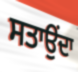
ਸਤਾਉਂਦਾ